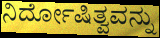
ನಿರ್ದೋಷಿತ್ವವನ್ನು